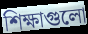
শিক্ষাগুলো